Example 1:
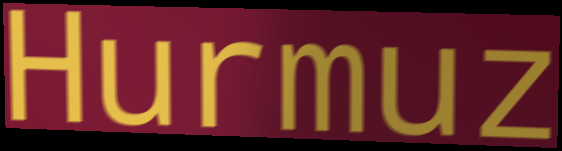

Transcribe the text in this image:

Hurmuz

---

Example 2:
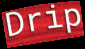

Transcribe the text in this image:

Drip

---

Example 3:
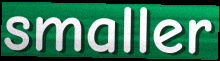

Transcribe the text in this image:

smaller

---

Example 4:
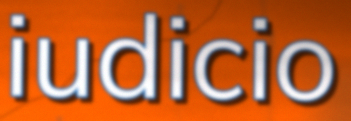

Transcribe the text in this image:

iudicio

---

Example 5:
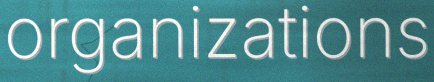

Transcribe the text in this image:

organizations